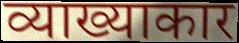
व्याख्याकार